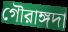
গৌরাঙ্গদা